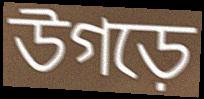
উগড়ে